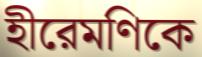
হীরেমণিকে